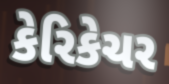
કેરિકેચર